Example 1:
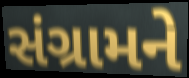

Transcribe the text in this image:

સંગ્રામને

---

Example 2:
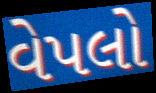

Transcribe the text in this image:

વેપલો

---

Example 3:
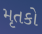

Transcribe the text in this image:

મૃતકો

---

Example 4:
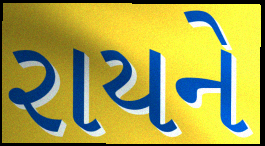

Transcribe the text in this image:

રાયને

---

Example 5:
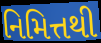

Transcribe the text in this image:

નિમિત્તથી